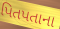
પિતપતાના